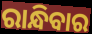
ରାନ୍ଧିବାର